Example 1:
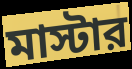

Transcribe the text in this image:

মাস্টার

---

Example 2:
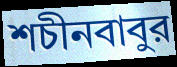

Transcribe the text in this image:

শচীনবাবুর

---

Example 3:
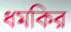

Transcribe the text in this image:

ধমকির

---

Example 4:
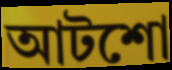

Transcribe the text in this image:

আটশো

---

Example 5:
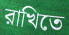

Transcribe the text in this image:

রাখিতে